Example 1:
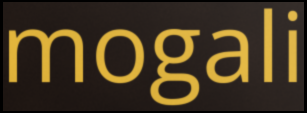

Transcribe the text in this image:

mogali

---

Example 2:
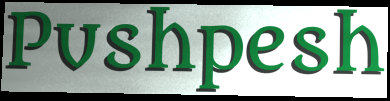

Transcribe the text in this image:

Pushpesh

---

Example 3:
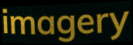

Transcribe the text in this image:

imagery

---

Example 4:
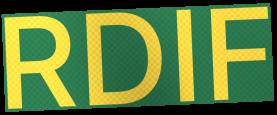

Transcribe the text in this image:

RDIF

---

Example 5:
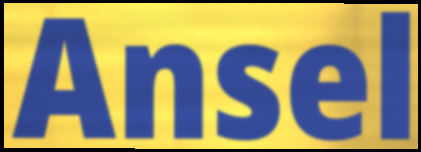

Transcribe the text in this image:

Ansel